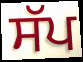
ਸੱਪ